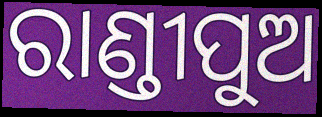
ରାଣ୍ଡୀପୁଅ